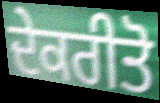
ਦੇਕਰੀਤੋ